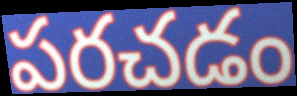
పరచడం